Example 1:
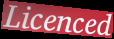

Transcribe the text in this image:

Licenced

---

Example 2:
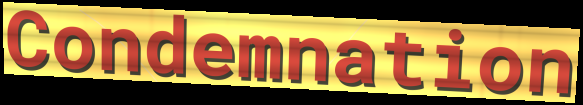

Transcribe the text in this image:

Condemnation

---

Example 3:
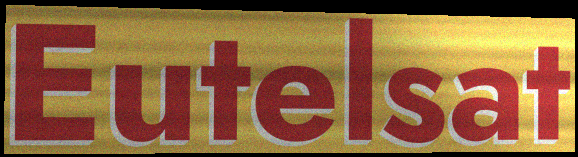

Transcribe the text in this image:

Eutelsat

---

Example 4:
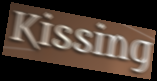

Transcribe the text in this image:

Kissing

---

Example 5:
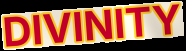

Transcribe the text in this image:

DIVINITY